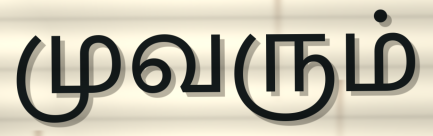
முவரும்